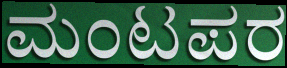
ಮಂಟಪರ